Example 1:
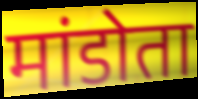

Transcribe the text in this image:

मांडोता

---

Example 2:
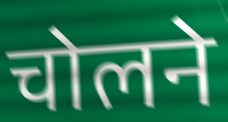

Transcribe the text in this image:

चोलने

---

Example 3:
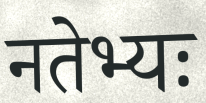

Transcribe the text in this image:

नतेभ्यः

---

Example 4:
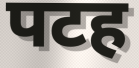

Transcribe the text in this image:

पटह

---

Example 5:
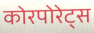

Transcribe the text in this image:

कोरपोरेट्स